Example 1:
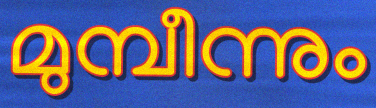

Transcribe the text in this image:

മുമ്പീന്നും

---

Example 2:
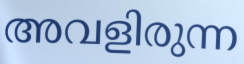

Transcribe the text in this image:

അവളിരുന്ന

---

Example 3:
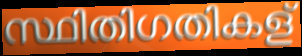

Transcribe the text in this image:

സ്ഥിതിഗതികള്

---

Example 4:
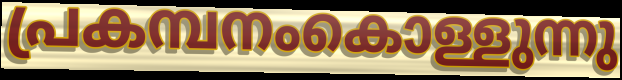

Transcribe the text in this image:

പ്രകമ്പനംകൊള്ളുന്നു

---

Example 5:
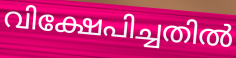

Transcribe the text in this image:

വിക്ഷേപിച്ചതിൽ